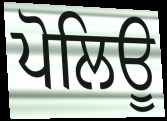
ਪੋਲਿਊ